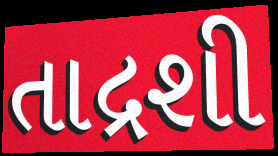
તાદ્રશી